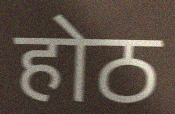
होठ